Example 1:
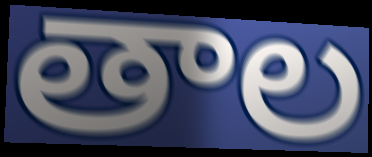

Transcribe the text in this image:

తాల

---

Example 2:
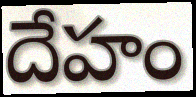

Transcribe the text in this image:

దేహం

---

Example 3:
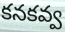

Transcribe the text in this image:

కనకవ్వ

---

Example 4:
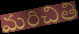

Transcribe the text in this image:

మరిచితి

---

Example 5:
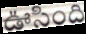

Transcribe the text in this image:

ఊసింది